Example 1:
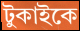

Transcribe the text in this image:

টুকাইকে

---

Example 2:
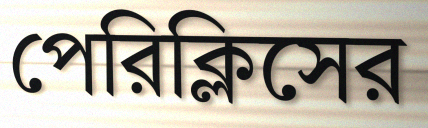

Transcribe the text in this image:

পেরিক্লিসের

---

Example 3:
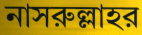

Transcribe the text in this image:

নাসরুল্লাহর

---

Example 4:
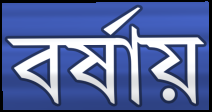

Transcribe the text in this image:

বর্ষায়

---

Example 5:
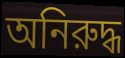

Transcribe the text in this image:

অনিরুদ্ধ